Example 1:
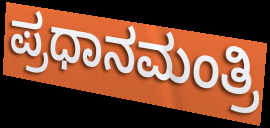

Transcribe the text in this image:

ಪ್ರಧಾನಮಂತ್ರಿ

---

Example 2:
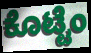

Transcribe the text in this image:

ಕೊಟ್ಟೆಂ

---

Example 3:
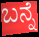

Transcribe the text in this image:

ಬನ್ನೆ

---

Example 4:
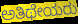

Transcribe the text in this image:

ಅತಿಥೇಯರು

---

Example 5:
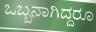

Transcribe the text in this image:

ಒಬ್ಬನಾಗಿದ್ದರೂ